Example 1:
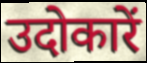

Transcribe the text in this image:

उदोकारें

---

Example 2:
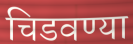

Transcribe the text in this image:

चिडवण्या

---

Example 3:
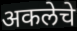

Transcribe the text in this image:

अकलेचे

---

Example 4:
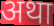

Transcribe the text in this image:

अथा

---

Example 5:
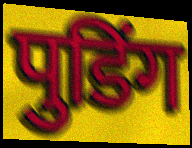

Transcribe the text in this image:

पुडिंग